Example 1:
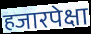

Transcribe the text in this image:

हजारपेक्षा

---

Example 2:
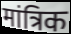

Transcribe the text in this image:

मांत्रिक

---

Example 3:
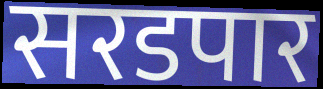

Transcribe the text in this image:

सरडपार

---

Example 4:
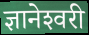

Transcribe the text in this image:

ज्ञानेश्‍वरी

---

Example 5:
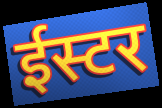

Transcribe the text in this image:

ईस्टर